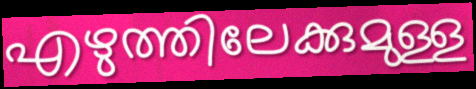
എഴുത്തിലേക്കുമുള്ള